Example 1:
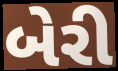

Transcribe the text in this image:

બેરી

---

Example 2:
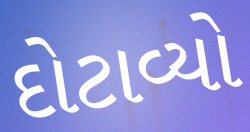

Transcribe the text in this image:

દોટાવ્યો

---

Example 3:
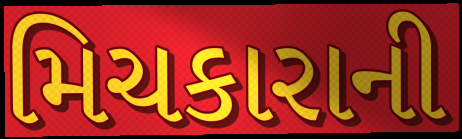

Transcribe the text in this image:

મિચકારાની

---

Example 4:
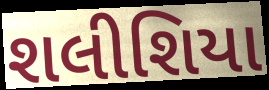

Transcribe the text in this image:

શલીશિયા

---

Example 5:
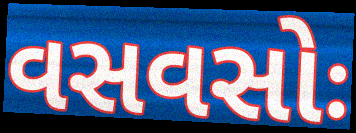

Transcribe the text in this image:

વસવસોઃ